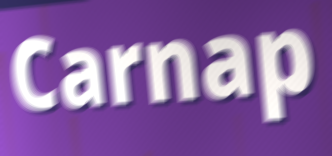
Carnap